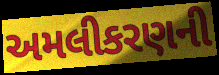
અમલીકરણની